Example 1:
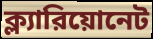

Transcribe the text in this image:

ক্ল্যারিয়োনেট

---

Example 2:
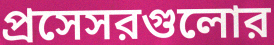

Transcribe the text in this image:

প্রসেসরগুলোর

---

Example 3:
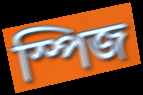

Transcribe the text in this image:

স্পিজ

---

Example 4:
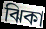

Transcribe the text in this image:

ঝিকা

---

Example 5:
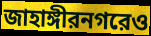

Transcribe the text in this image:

জাহাঙ্গীরনগরেও